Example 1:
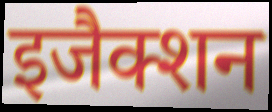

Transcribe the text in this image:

इजैक्शन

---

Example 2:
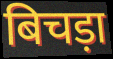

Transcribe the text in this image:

बिचड़ा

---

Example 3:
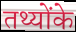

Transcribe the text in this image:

तथ्योंके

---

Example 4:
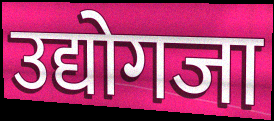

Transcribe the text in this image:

उद्योगजा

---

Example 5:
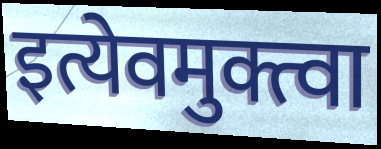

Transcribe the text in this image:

इत्येवमुक्त्वा